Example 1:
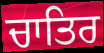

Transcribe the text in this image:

ਚਾਤਿਰ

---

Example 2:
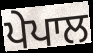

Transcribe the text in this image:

ਪੇਪਾਲ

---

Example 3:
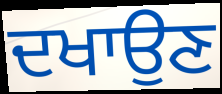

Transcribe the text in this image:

ਦਖਾਉਣ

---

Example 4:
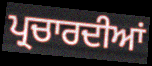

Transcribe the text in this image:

ਪ੍ਰਚਾਰਦੀਆਂ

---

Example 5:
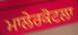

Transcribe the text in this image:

ਮਾਲੇਰਕੋਟਲਾ